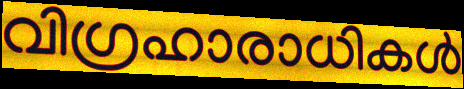
വിഗ്രഹാരാധികൾ